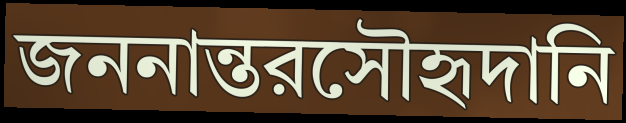
জননান্তরসৌহৃদানি